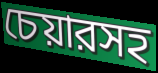
চেয়ারসহ